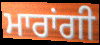
ਮਾਰਾਂਗੀ